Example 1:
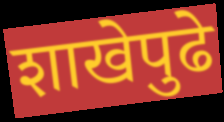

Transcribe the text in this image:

शाखेपुढे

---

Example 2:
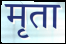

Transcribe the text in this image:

मृता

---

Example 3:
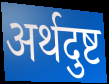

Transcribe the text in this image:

अर्थदुष्ट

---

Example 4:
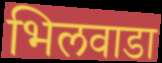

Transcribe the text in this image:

भिलवाडा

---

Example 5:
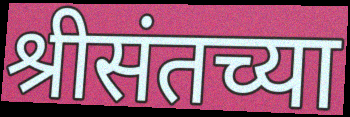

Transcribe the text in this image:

श्रीसंतच्या